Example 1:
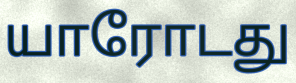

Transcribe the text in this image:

யாரோடது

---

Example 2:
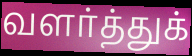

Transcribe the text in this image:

வளர்த்துக்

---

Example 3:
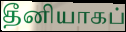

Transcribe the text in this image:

தீனியாகப்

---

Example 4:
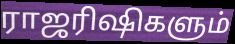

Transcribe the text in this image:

ராஜரிஷிகளும்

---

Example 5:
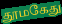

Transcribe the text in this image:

தூமகேது